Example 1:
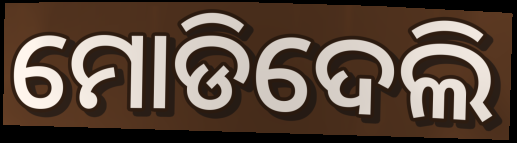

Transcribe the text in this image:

ମୋଡିଦେଲି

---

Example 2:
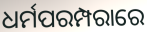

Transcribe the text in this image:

ଧର୍ମପରମ୍ପରାରେ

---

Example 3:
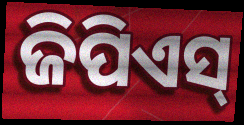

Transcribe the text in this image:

ଜିପିଏସ୍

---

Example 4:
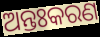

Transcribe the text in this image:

ଅନ୍ତଃକରଣ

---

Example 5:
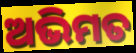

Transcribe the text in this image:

ଅଭିମତ